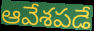
ఆవేశపడే